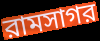
রামসাগর